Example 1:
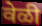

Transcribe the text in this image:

वेळी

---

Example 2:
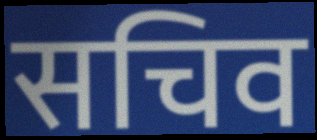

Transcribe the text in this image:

सचिव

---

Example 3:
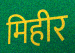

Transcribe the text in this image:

मिहीर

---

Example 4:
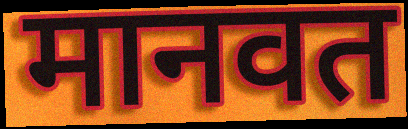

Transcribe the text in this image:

मानवत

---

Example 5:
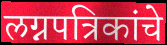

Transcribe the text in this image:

लग्नपत्रिकांचे